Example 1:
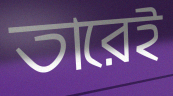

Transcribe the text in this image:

তারেই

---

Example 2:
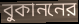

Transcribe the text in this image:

বুকাননের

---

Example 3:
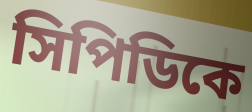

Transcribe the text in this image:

সিপিডিকে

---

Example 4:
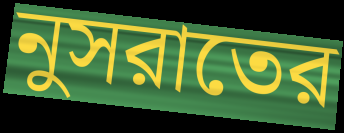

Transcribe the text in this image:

নুসরাতের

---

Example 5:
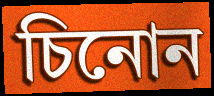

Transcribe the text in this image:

চিনোন